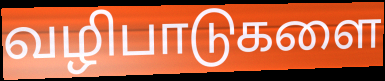
வழிபாடுகளை